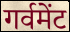
गर्वमेंट